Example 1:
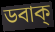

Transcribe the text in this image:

ডবাক্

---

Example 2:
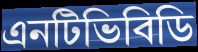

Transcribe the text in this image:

এনটিভিবিডি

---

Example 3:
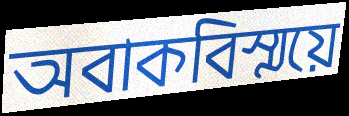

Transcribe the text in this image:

অবাকবিস্ময়ে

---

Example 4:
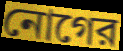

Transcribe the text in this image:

নোগের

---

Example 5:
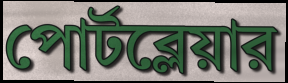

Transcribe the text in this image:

পোর্টব্লেয়ার